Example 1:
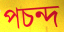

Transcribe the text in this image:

পচন্দ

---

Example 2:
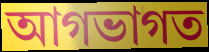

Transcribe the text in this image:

আগভাগত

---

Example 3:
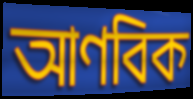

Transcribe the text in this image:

আণবিক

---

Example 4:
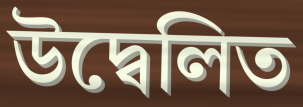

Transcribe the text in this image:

উদ্বেলিত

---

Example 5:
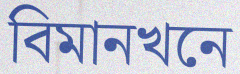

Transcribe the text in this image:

বিমানখনে